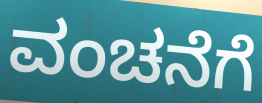
ವಂಚನೆಗೆ